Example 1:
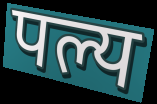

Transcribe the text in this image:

पल्य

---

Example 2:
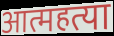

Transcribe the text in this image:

आत्‍महत्‍या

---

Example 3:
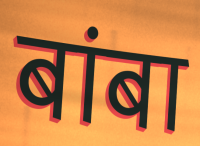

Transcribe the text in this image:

बांबा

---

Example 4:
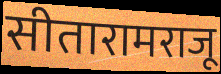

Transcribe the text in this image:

सीतारामराजू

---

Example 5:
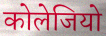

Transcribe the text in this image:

कोलेजियो